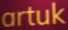
artuk